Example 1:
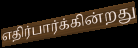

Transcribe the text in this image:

எதிர்பார்க்கின்றது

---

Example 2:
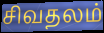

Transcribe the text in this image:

சிவதலம்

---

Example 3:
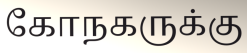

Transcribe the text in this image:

கோநகருக்கு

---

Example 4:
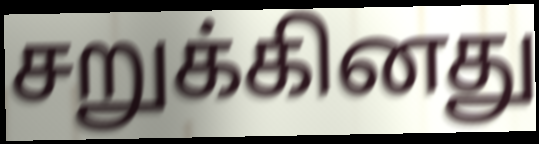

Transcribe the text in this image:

சறுக்கினது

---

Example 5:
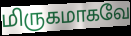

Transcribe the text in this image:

மிருகமாகவே